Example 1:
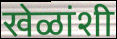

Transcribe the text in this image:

खेळांशी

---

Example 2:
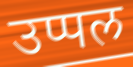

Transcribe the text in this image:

उप्पल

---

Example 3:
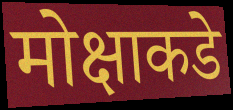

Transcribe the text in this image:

मोक्षाकडे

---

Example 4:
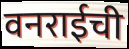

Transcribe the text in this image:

वनराईची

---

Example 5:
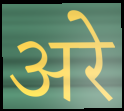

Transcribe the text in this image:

अरे